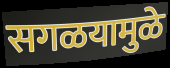
सगळयामुळे